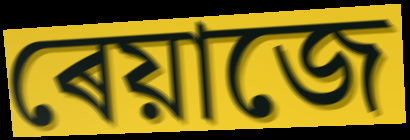
ৰেয়াজে